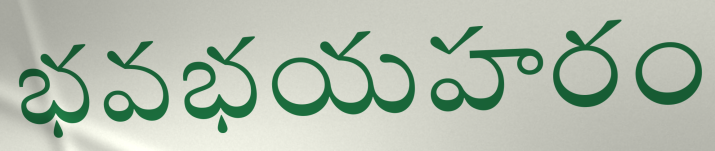
భవభయహరం